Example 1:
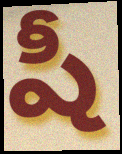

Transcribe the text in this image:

షీ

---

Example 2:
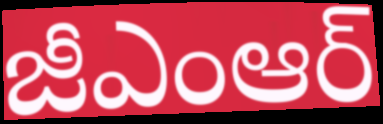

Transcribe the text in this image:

జీఎంఆర్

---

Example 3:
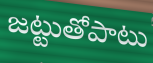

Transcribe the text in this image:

జట్టుతోపాటు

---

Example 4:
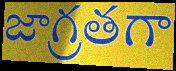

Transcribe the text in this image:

జాగ్రతగా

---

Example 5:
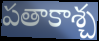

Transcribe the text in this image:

పతాకాశ్చ